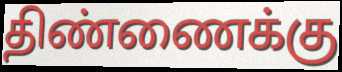
திண்ணைக்கு